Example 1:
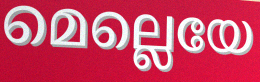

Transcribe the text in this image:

മെല്ലെയേ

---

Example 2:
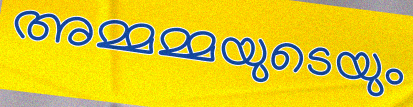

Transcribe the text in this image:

അമ്മമ്മയുടെയും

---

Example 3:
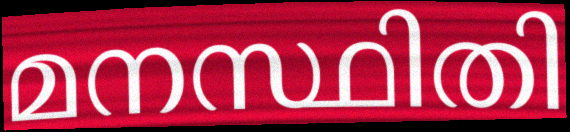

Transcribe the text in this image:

മനസ്ഥിതി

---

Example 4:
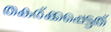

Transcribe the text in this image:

തകര്ക്കപ്പെട്ടത്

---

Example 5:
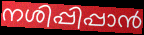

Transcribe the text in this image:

നശിപ്പിപ്പാൻ